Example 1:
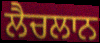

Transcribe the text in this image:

ਲੈਚਲਾਨ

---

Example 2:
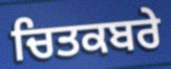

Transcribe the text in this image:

ਚਿਤਕਬਰੇ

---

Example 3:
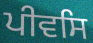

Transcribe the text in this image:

ਪੀਵਸਿ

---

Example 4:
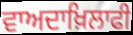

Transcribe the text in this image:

ਵਾਅਦਾਖ਼ਿਲਾਫੀ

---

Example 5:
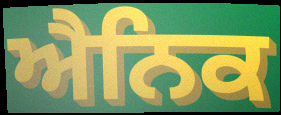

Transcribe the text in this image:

ਐਨਿਕ